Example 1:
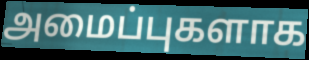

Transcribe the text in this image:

அமைப்புகளாக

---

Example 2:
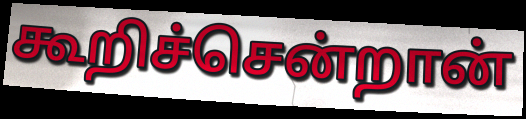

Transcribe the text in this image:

கூறிச்சென்றான்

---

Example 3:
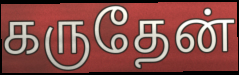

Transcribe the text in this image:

கருதேன்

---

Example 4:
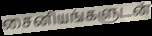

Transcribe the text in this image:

சைனியங்களுடன்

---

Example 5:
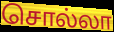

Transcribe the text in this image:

சொல்லா